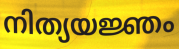
നിത്യയജ്ഞം